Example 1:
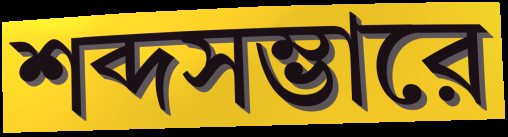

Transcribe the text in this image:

শব্দসম্ভারে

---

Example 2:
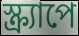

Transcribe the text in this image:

স্ক্র্যাপে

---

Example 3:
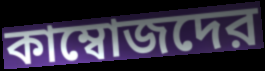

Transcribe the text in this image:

কাম্বোজদের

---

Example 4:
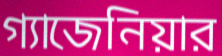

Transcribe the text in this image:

গ্যাজেনিয়ার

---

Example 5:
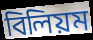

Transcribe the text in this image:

বিলিয়ম